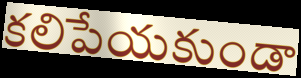
కలిపేయకుండా